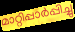
മാറ്റിപ്പാർപ്പിച്ചു